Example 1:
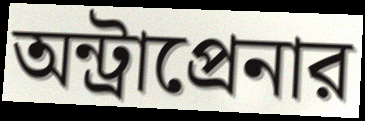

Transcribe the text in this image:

অন্ট্রাপ্রেনার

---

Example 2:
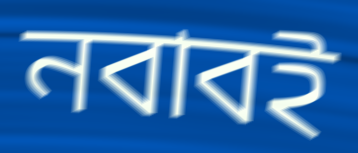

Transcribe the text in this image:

নবাবই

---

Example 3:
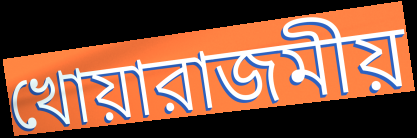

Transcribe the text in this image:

খোয়ারাজমীয়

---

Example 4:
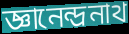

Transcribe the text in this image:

জ্ঞানেন্দ্রনাথ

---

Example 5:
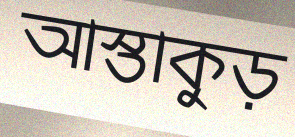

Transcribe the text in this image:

আস্তাকুড়